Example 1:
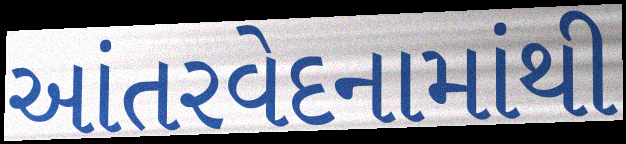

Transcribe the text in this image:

આંતરવેદનામાંથી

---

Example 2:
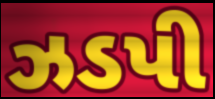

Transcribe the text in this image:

ઝડપી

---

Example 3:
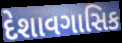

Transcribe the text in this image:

દેશાવગાસિક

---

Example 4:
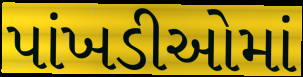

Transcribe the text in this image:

પાંખડીઓમાં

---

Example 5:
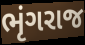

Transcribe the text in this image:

ભૃંગરાજ